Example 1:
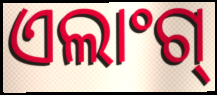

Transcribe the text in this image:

ଏଲାଂଗ୍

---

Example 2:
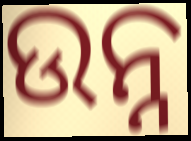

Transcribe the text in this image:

ଉନ୍ନ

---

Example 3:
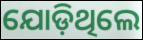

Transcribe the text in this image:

ଯୋଡ଼ିଥିଲେ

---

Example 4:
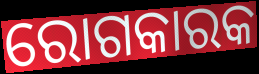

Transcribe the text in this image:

ରୋଗକାରକ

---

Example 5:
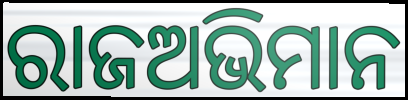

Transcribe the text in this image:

ରାଜଅଭିମାନ